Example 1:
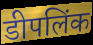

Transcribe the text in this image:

डीपलिंक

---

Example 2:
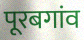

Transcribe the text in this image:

पूरबगांव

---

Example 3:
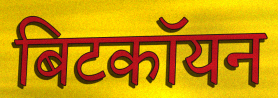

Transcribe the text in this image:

बिटकॉयन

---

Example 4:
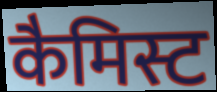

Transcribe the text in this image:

कैमिस्ट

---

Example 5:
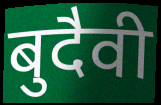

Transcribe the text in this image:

बुदैवी